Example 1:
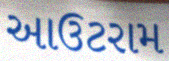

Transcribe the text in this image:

આઉટરામ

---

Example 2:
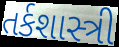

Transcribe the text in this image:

તર્કશાસ્ત્રી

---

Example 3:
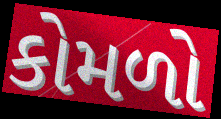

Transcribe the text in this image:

કોમળો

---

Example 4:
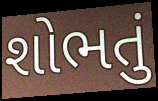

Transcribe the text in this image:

શોભતું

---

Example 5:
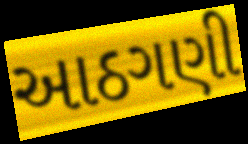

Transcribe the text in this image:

આઠગણી